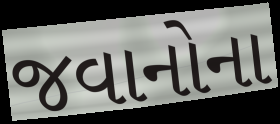
જવાનોના